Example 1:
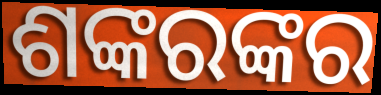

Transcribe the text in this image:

ଶଙ୍କରଙ୍କର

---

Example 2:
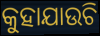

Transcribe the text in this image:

କୁହାଯାଉଚି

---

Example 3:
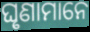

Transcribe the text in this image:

ଘୃଣାମାନେ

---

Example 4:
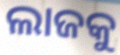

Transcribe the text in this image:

ଲାଜକୁ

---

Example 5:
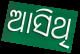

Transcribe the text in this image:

ଆସିଥି